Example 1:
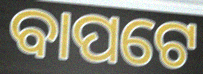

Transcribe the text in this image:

ବାପଟେ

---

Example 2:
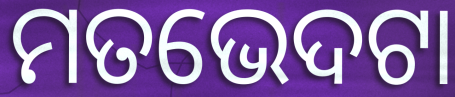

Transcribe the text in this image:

ମତଭେଦଟା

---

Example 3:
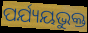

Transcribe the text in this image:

ପର୍ଯ୍ୟୟଭୁକ୍ତ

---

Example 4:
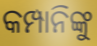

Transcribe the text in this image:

କମ୍ପାନିଙ୍କୁ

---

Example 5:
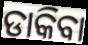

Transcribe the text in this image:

ଡାକିବା